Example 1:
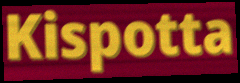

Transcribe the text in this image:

Kispotta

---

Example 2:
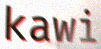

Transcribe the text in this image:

kawi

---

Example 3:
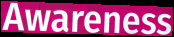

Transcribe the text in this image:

Awareness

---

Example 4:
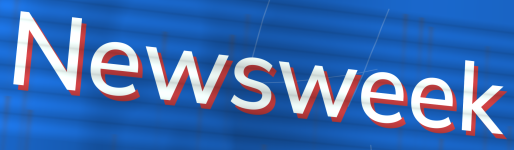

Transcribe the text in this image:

Newsweek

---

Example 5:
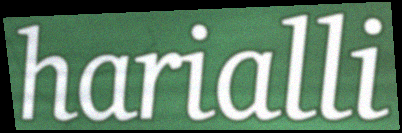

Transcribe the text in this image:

harialli